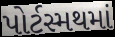
પોર્ટસ્મથમાં